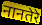
नानतेरे